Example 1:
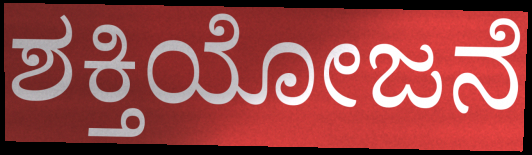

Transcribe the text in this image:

ಶಕ್ತಿಯೋಜನೆ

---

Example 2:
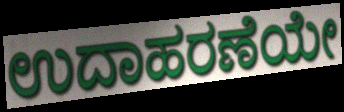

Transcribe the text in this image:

ಉದಾಹರಣೆಯೇ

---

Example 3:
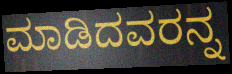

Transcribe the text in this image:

ಮಾಡಿದವರನ್ನ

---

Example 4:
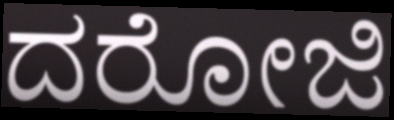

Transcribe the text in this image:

ದರೋಜಿ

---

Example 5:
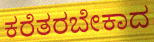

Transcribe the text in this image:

ಕರೆತರಬೇಕಾದ